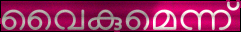
വൈകുമെന്ന്